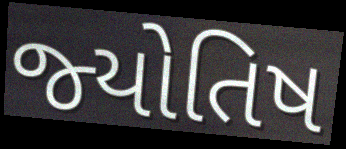
જ્‍યોતિષ